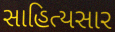
સાહિત્યસાર